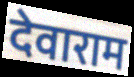
देवाराम